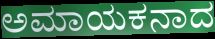
ಅಮಾಯಕನಾದ